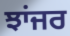
ਝਾਂਜਰ